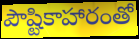
పౌష్టికాహారంతో